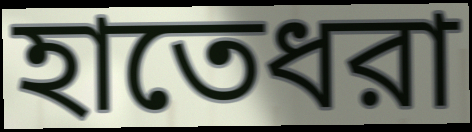
হাতেধরা